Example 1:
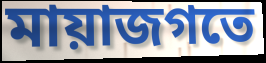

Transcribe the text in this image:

মায়াজগতে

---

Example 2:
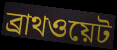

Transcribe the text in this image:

ব্রাথওয়েট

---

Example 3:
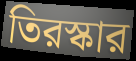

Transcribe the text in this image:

তিরস্কার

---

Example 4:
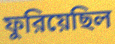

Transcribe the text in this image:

ফুরিয়েছিল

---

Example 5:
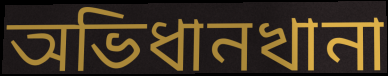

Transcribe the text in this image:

অভিধানখানা